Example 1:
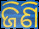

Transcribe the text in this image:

ଜିଣି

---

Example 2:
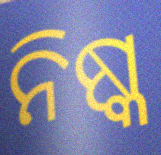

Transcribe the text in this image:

ନିଷ୍କ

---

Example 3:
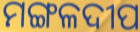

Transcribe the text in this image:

ମଙ୍ଗଳଦୀପ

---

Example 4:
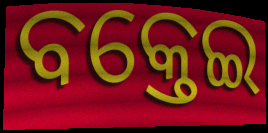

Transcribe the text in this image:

ବକ୍ତେଇ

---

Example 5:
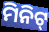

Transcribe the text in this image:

ମିନିଟ୍